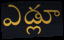
ఎడ్లూ